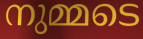
നുമ്മടെ